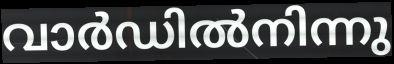
വാർഡിൽനിന്നു